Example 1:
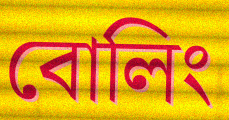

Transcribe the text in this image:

বোলিং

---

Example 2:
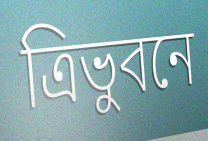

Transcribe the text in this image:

ত্রিভুবনে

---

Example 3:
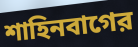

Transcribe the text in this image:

শাহিনবাগের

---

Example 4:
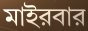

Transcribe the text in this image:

মাইরবার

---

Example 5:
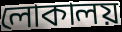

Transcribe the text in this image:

লোকালয়